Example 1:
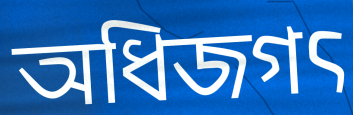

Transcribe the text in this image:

অধিজগৎ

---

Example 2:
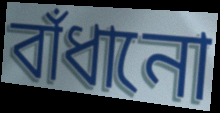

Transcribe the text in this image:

বাঁধানো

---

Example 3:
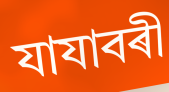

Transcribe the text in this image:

যাযাবৰী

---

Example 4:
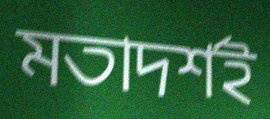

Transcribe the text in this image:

মতাদৰ্শই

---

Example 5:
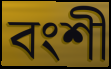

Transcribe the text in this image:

বংশী